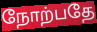
நோற்பதே